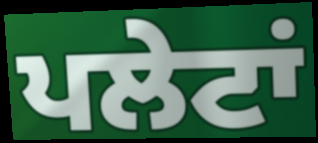
ਪਲੇਟਾਂ